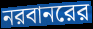
নরবানরের